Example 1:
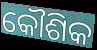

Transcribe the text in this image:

କୌଶିକ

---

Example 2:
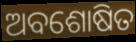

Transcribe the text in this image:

ଅବଶୋଷିତ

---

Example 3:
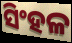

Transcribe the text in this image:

ସିଂହଳ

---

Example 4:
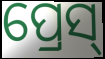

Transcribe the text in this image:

ପ୍ରେସ୍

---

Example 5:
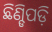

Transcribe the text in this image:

ଛିଣ୍ଡିପଡ଼ି